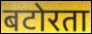
बटोरता